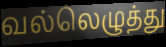
வல்லெழுத்து